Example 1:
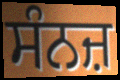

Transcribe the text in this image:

ਸੰਨਜ਼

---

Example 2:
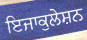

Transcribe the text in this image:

ਇਜਾਕੁਲੇਸ਼ਨ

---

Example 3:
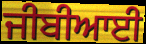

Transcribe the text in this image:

ਜੀਬੀਆਈ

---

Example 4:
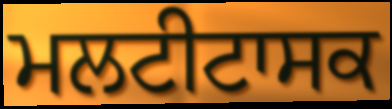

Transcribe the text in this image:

ਮਲਟੀਟਾਸਕ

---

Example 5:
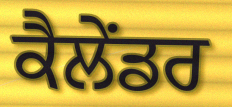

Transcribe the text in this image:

ਕੈਲੇਂਡਰ